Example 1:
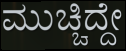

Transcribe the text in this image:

ಮುಚ್ಚಿದ್ದೇ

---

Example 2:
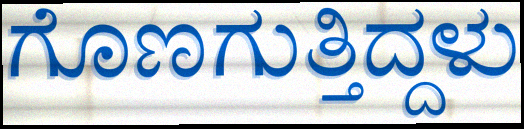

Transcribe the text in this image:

ಗೊಣಗುತ್ತಿದ್ದಳು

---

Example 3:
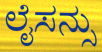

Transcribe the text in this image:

ಲೈಸನ್ಸು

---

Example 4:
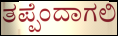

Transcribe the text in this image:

ತಪ್ಪೆಂದಾಗಲಿ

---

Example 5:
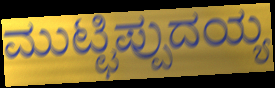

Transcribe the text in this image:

ಮುಟ್ಟಿಪ್ಪುದಯ್ಯ